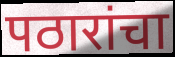
पठारांचा